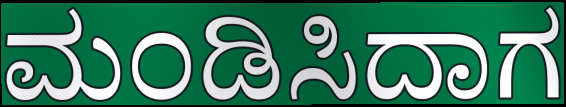
ಮಂಡಿಸಿದಾಗ